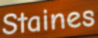
Staines